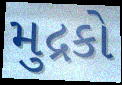
મુદ્રકો